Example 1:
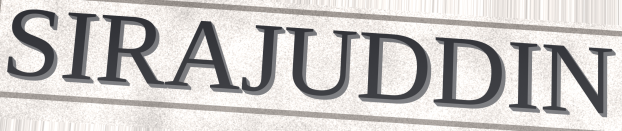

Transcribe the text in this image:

SIRAJUDDIN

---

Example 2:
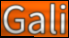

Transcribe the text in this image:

Gali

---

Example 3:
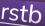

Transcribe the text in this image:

rstb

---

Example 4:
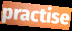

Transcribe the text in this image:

practise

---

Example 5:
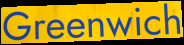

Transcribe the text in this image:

Greenwich